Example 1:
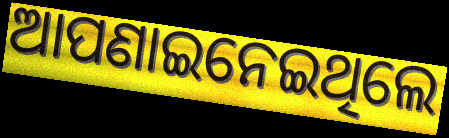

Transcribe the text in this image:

ଆପଣାଇନେଇଥିଲେ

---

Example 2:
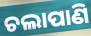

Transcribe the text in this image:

ଚଲାପାଣି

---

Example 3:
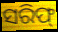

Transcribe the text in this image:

ସରିଫ୍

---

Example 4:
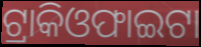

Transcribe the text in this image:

ଟ୍ରାକିଓଫାଇଟା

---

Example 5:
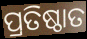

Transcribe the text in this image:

ପ୍ରତିଷ୍ଠାତ